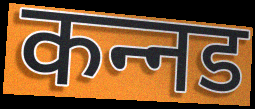
कन्नड